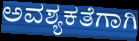
ಅವಶ್ಯಕತೆಗಾಗಿ